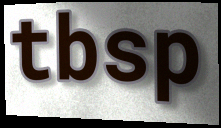
tbsp